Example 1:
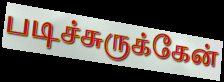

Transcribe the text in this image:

படிச்சுருக்கேன்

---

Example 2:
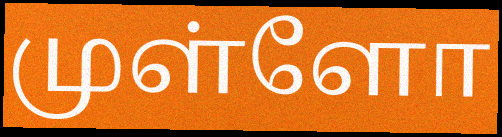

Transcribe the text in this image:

முள்ளோ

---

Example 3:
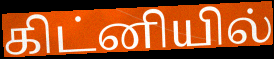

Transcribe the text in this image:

கிட்னியில்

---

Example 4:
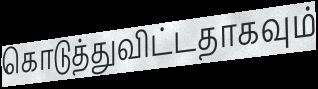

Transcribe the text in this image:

கொடுத்துவிட்டதாகவும்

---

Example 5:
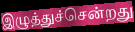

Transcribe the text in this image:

இழுத்துச்சென்றது